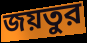
জয়তুর